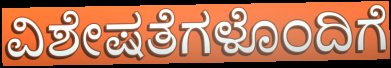
ವಿಶೇಷತೆಗಳೊಂದಿಗೆ